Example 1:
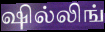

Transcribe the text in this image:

ஷில்லிங்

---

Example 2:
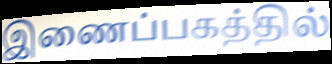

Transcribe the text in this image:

இணைப்பகத்தில்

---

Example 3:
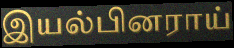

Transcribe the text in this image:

இயல்பினராய்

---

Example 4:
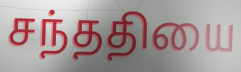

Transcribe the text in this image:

சந்ததியை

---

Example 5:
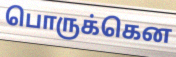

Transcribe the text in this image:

பொருக்கென